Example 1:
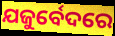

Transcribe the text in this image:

ଯଜୁର୍ବେଦରେ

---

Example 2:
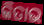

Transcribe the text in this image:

କିତାଭ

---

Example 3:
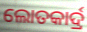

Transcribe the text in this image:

ଲୋତକାର୍ଦ୍ର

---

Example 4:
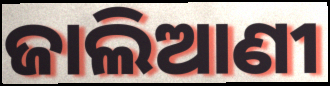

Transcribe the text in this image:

ଜାଲିଆଣୀ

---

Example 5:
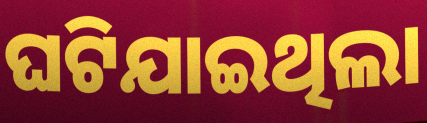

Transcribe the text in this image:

ଘଟିଯାଇଥିଲା